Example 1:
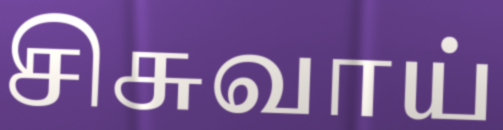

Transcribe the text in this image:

சிசுவாய்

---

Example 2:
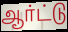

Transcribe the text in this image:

ஆர்ட்டு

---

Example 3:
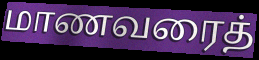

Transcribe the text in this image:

மாணவரைத்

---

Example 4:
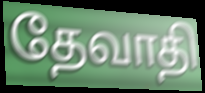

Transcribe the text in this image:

தேவாதி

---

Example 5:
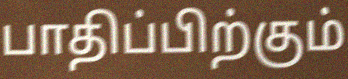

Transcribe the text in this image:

பாதிப்பிற்கும்